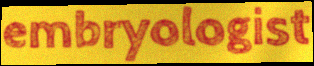
embryologist